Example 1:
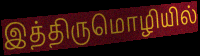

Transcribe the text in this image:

இத்திருமொழியில்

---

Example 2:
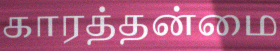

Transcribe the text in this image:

காரத்தன்மை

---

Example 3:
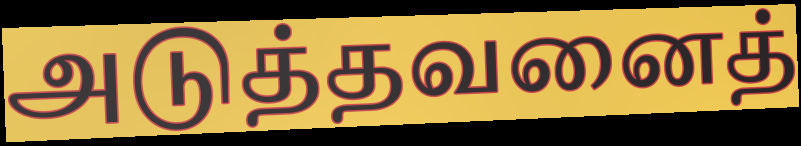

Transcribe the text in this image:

அடுத்தவனைத்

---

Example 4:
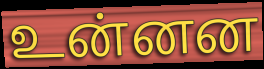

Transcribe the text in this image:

உன்னன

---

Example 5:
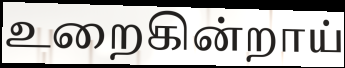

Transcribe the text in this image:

உறைகின்றாய்